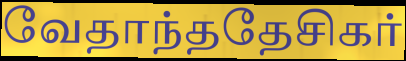
வேதாந்ததேசிகர்